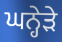
ਘਨ੍ਹੇੜੇ